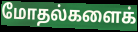
மோதல்களைக்